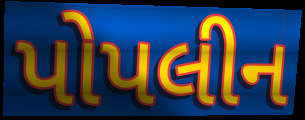
પોપલીન